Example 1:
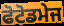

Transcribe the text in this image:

ਫੋਟੋਡਮੇਜ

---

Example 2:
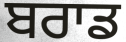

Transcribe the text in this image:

ਬਰਾਡ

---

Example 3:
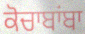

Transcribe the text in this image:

ਕੋਚਾਬਾਂਬਾ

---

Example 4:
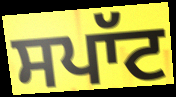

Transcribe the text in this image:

ਸਪਾੱਟ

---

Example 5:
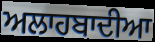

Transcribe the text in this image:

ਅਲਾਹਬਾਦੀਆ